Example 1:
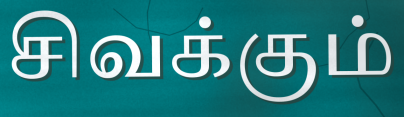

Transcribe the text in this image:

சிவக்கும்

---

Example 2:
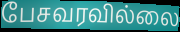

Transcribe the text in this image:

பேசவரவில்லை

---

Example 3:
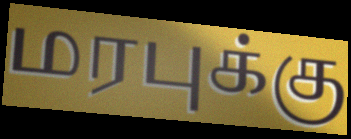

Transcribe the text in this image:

மரபுக்கு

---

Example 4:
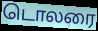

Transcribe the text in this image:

டொலரை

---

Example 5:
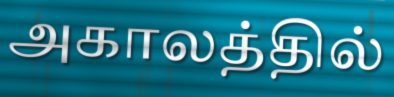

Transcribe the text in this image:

அகாலத்தில்